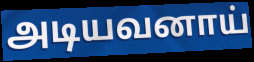
அடியவனாய்